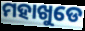
ମହାଖୁଡେ